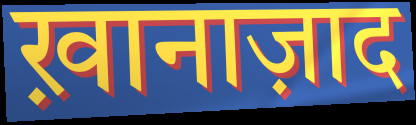
ख़ानाज़ाद